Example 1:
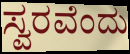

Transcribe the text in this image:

ಸ್ವರವೆಂದು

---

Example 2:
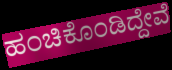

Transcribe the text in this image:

ಹಂಚಿಕೊಂಡಿದ್ದೇವೆ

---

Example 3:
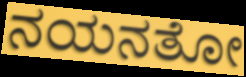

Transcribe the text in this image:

ನಯನತೋ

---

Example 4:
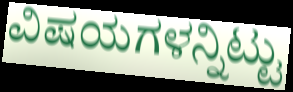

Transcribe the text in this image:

ವಿಷಯಗಳನ್ನಿಟ್ಟು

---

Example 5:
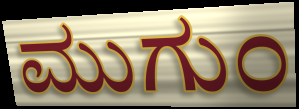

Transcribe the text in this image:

ಮುಗುಂ